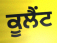
ਕੂਲੈਂਟ